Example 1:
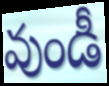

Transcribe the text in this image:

వుండీ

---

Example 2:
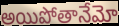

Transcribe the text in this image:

అయిపోతానేమో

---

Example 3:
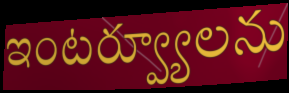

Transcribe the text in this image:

ఇంటర్వ్యూలను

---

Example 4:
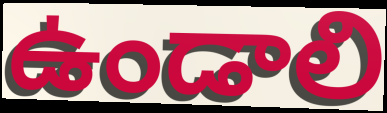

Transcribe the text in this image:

ఉండాలి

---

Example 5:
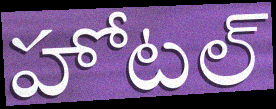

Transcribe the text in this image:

హోటల్